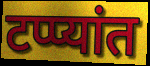
टप्प्यांत